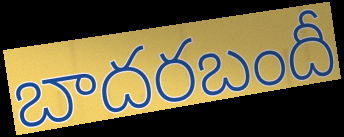
బాదరబందీ